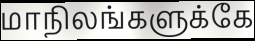
மாநிலங்களுக்கே